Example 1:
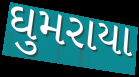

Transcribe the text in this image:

ઘુમરાયા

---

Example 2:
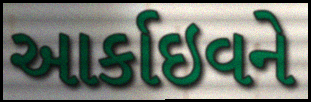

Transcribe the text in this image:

આર્કાઇવને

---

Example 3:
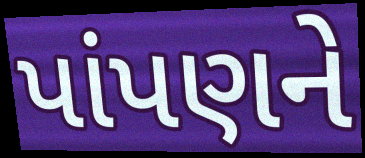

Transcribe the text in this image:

પાંપણને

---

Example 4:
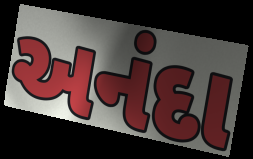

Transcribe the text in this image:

અનંદા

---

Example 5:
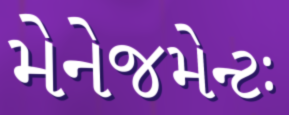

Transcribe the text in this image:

મેનેજમેન્ટઃ